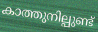
കാത്തുനില്പുണ്ട്